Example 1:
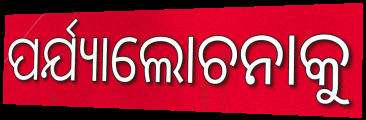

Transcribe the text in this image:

ପର୍ଯ୍ୟାଲୋଚନାକୁ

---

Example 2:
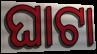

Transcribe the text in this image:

ଘାଟା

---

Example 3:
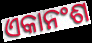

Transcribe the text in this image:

ଏକାନଂଶ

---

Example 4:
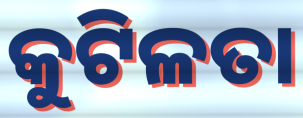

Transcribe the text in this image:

କୁଟିଳତା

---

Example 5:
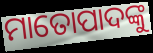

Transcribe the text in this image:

ମାତୋପାଦଙ୍କୁ